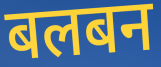
बलबन